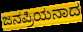
ಜನಪ್ರಿಯನಾದ